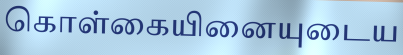
கொள்கையினையுடைய